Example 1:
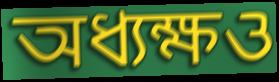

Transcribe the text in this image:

অধ্যক্ষও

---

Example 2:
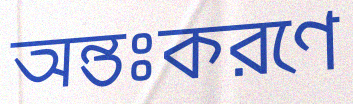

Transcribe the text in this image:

অন্তঃকরণে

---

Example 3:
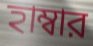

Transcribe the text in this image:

হাম্বার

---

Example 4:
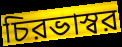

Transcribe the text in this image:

চিরভাস্বর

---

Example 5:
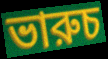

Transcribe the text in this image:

ভারুচ